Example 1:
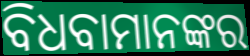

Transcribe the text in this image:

ବିଧବାମାନଙ୍କର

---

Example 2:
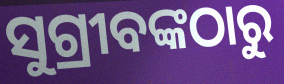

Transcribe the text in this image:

ସୁଗ୍ରୀବଙ୍କଠାରୁ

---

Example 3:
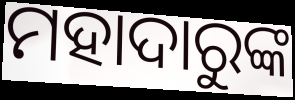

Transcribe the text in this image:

ମହାଦାରୁଙ୍କ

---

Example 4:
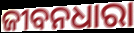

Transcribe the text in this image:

ଜୀବନଧାରା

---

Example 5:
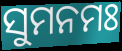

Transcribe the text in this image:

ସୁମନମଃ